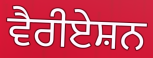
ਵੈਰੀਏਸ਼ਨ